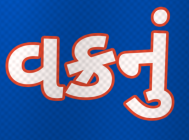
વક્રનું